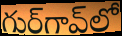
గుర్‌గావ్‌లో